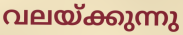
വലയ്ക്കുന്നു